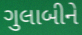
ગુલાબીને